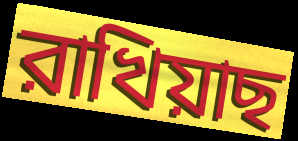
রাখিয়াছ